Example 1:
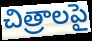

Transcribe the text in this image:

చిత్రాలపై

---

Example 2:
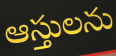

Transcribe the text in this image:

ఆస్తులను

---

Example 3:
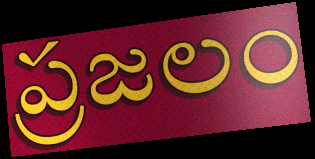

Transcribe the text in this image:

ప్రజలం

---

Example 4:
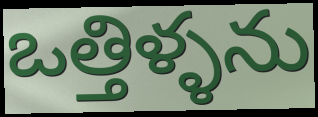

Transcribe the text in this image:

ఒత్తిళ్ళను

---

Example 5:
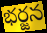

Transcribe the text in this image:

భర్జన